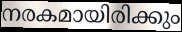
നരകമായിരിക്കും